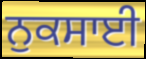
ਨੁਕਸਾਈ